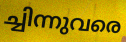
ച്ചിന്നുവരെ